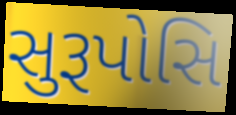
સુરૂપોસિ